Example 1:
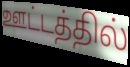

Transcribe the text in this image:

ஊட்டத்தில்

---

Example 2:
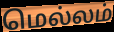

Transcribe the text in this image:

மெல்லம்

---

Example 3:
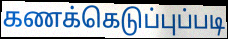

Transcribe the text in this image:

கணக்கெடுப்புப்படி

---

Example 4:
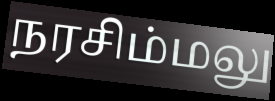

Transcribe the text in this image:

நரசிம்மலு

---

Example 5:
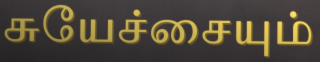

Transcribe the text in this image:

சுயேச்சையும்